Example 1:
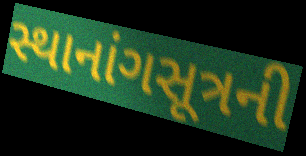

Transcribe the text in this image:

સ્થાનાંગસૂત્રની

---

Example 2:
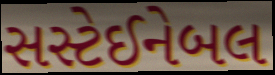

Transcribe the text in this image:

સસ્ટેઈનેબલ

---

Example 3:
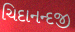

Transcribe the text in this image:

ચિદાનન્દજી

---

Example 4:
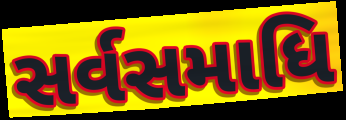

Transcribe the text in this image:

સર્વસમાધિ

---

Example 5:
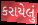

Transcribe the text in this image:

કરાયેલું